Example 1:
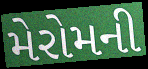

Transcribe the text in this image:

મેરોમની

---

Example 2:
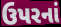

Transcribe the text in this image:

ઉપરનાં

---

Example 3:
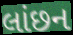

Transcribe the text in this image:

લાંછન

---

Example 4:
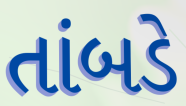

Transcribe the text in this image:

તાંબડે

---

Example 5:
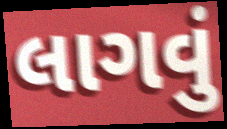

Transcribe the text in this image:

લાગવું